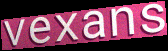
vexans